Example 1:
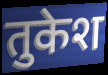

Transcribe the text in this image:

तुकेश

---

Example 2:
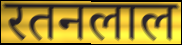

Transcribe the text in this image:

रतनलाल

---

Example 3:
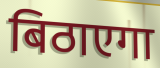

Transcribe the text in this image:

बिठाएगा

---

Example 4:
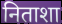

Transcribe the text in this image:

निताशा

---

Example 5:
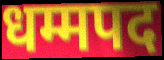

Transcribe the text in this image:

धम्मपद